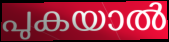
പുകയാൽ